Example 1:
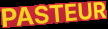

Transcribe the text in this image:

PASTEUR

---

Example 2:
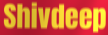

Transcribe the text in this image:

Shivdeep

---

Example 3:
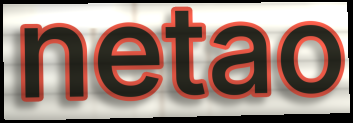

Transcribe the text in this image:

netao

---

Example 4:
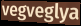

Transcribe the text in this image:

vegveglya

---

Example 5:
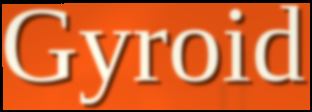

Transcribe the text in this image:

Gyroid